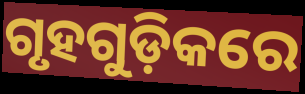
ଗୃହଗୁଡ଼ିକରେ